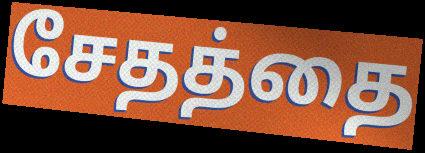
சேதத்தை